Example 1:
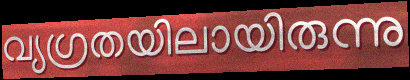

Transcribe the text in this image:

വ്യഗ്രതയിലായിരുന്നു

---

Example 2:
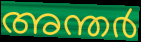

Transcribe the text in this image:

അന്തർ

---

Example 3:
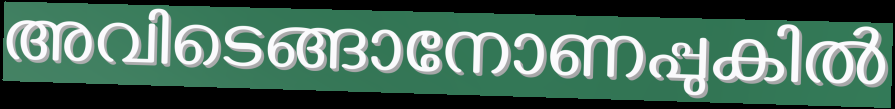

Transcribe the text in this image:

അവിടെങ്ങാനോണപ്പുകിൽ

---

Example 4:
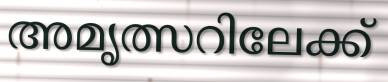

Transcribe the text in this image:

അമൃത്സറിലേക്ക്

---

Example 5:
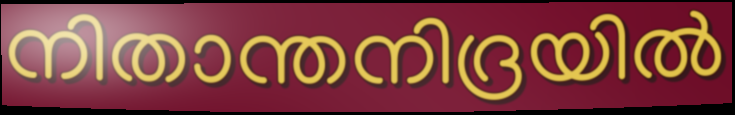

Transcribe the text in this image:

നിതാന്തനിദ്രയിൽ